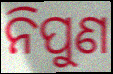
ନିପୁଣ